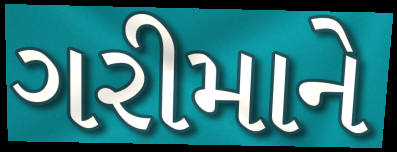
ગરીમાને